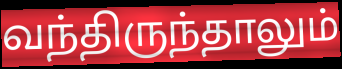
வந்திருந்தாலும்